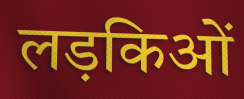
लड़किओं